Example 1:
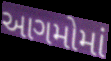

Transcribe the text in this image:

આગમોમાં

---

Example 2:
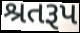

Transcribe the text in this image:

શ્રતરૂપ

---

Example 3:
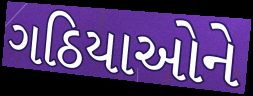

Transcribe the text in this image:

ગઠિયાઓને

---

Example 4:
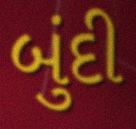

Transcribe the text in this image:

બુંદી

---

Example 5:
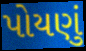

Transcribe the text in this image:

પોયણું